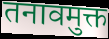
तनावमुक्त